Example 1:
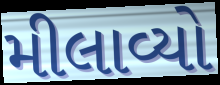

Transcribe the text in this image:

મીલાવ્યો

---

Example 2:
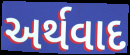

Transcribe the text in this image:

અર્થવાદ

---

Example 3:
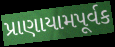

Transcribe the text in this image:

પ્રાણાયામપૂર્વક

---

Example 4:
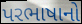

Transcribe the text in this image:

પરભાષાનો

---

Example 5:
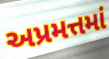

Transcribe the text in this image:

અપ્રમત્તમાં